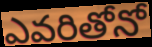
ఎవరితోనో